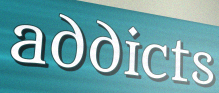
addicts